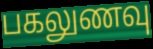
பகலுணவு